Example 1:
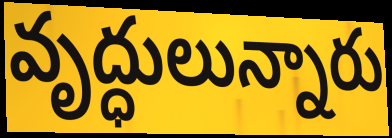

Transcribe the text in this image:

వృద్ధులున్నారు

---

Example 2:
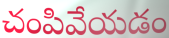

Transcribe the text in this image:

చంపివేయడం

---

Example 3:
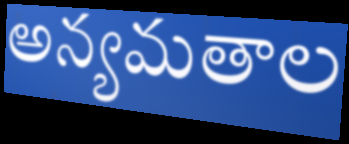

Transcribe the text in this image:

అన్యమతాల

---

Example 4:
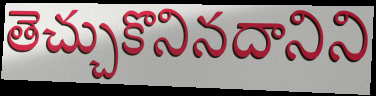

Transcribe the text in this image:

తెచ్చుకొనినదానిని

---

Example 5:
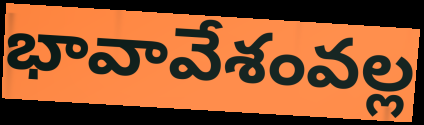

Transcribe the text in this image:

భావావేశంవల్ల